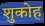
शुकोह